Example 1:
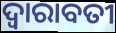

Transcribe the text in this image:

ଦ୍ଵାରାବତୀ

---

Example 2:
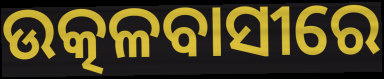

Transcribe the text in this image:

ଉତ୍କଳବାସୀରେ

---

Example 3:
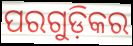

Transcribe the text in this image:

ପରଗୁଡ଼ିକର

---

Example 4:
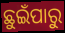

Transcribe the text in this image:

ଛୁଇଁପାରୁ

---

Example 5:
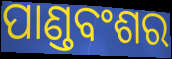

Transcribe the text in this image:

ପାଣ୍ଡବଂଶର